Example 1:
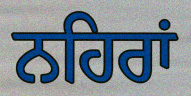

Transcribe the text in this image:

ਨਹਿਰਾਂ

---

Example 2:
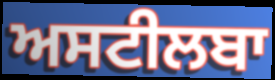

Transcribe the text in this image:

ਅਸਟੀਲਬਾ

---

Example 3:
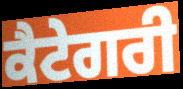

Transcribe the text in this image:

ਕੈਟੇਗਰੀ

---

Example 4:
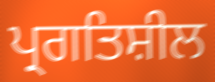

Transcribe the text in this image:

ਪ੍ਰਗਤਿਸ਼ੀਲ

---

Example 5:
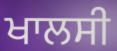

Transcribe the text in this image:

ਖਾਲਸੀ